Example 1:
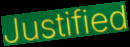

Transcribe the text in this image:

Justified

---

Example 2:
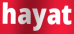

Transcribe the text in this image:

hayat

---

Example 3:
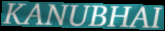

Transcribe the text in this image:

KANUBHAI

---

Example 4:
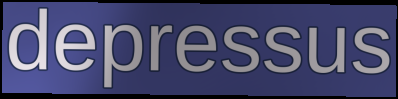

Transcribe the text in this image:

depressus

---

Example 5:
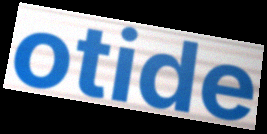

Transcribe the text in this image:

otide